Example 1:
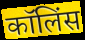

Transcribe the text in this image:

कॉलिंस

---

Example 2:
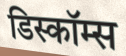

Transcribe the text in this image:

डिस्कॉम्स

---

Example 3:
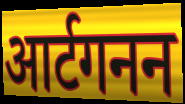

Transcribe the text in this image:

आर्टगनन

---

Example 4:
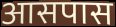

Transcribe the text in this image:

आसपास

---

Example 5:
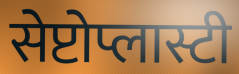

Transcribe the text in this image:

सेप्टोप्लास्टी